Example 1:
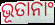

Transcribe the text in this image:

ଭୂତାନାଂ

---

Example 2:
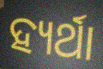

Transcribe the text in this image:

ହ୍ୟର୍ଥା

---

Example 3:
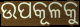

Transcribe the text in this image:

ଉପକୂଳକୁ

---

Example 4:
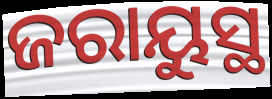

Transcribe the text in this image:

ଜରାୟୁସ୍ଥ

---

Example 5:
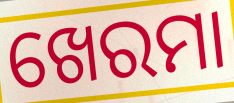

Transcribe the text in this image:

ଖେରମା